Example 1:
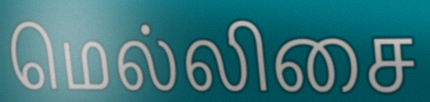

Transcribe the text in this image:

மெல்லிசை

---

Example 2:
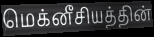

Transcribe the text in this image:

மெக்னீசியத்தின்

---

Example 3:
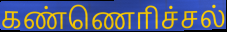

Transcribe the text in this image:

கண்ணெரிச்சல்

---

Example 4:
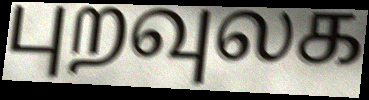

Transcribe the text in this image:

புறவுலக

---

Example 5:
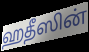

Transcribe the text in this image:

ஹதீஸின்